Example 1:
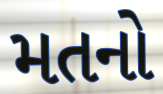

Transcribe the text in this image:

મતનો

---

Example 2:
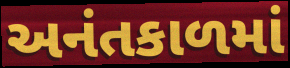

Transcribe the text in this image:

અનંતકાળમાં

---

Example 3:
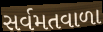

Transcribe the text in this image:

સર્વમતવાળા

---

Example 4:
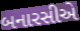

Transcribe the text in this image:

બનારસીએ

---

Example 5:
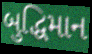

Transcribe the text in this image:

બુદ્ધિમાન